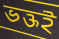
ভক্তই